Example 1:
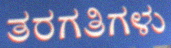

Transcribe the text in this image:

ತರಗತಿಗಳು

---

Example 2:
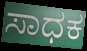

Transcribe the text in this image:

ಸಾಧಕ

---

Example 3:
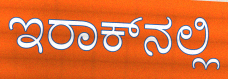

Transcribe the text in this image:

ಇರಾಕ್‌ನಲ್ಲಿ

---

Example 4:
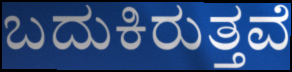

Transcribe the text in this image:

ಬದುಕಿರುತ್ತವೆ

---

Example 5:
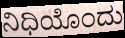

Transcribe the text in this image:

ನಿಧಿಯೊಂದು